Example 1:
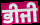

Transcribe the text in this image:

ਭੀਜੀ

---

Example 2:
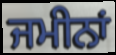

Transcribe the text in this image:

ਜਮੀਨਾਂ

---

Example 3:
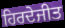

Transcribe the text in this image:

ਹਿਰਦੇਜੀਤ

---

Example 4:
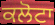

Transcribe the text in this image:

ਕਲੋਟਾ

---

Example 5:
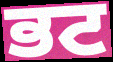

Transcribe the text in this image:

ਭਟ